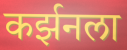
कर्झनला